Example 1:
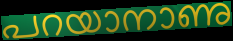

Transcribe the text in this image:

പറയാനാണു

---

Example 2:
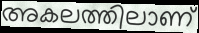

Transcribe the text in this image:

അകലത്തിലാണ്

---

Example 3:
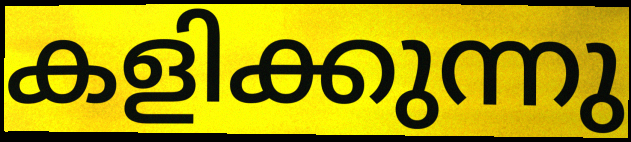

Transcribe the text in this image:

കളിക്കുന്നു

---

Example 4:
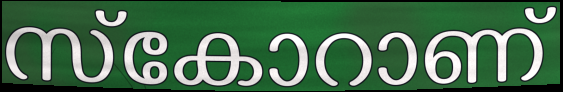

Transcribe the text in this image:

സ്‌കോറാണ്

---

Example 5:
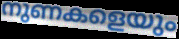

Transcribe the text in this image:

നുണകളെയും